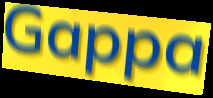
Gappa